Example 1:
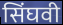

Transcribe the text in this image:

सिंघवी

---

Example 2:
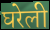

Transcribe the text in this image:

घरेली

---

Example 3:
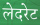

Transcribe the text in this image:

लेदरेट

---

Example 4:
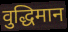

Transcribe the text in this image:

वुद्धिमान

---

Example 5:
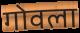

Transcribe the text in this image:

गोवला